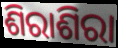
ଶିରାଶିରା